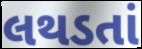
લથડતાં